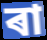
ৰা